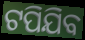
ଟପିଯିବ